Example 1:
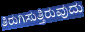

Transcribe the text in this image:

ತಿರುಗಿಸುತ್ತಿರುವುದು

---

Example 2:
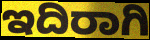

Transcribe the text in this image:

ಇದಿರಾಗಿ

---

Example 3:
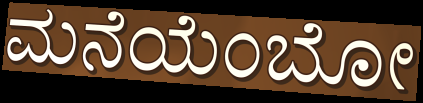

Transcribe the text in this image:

ಮನೆಯೆಂಬೋ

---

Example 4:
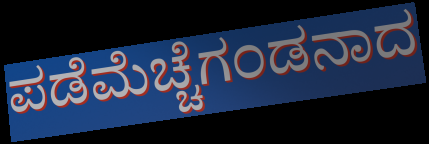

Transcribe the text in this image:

ಪಡೆಮೆಚ್ಚೆಗಂಡನಾದ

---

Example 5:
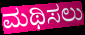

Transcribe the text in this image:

ಮಥಿಸಲು